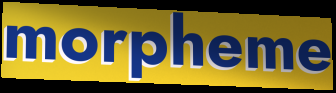
morpheme